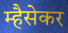
म्हैसेकर